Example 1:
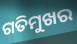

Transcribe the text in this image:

ଗତିମୁଖର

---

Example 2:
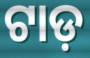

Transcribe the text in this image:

ଟାଡ଼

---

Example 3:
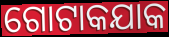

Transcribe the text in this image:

ଗୋଟାକଯାକ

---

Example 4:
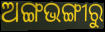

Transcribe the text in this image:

ଅଙ୍ଗଭଙ୍ଗୀରୁ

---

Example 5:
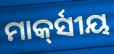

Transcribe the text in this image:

ମାର୍କ୍‍ସୀୟ